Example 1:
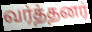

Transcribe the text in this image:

வர்த்தனர்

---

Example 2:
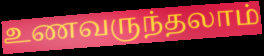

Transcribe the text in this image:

உணவருந்தலாம்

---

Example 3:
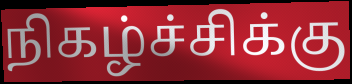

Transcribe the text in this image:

நிகழ்ச்சிக்கு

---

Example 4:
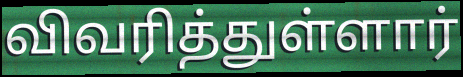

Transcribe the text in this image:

விவரித்துள்ளார்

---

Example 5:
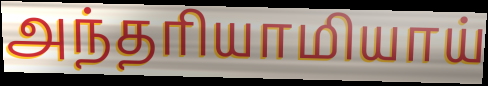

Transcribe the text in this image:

அந்தரியாமியாய்